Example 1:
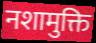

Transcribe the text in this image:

नशामुक्ति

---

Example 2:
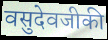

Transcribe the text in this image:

वसुदेवजीकी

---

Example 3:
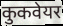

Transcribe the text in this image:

कुकवेयर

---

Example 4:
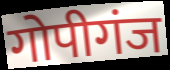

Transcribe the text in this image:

गोपीगंज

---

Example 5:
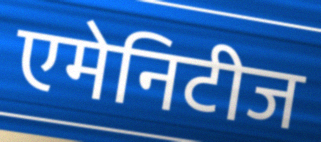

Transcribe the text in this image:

एमेनिटीज